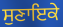
ਸੁਣਾਇਕੇ